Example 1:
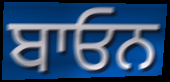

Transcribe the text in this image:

ਬਾਓਨ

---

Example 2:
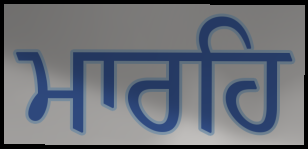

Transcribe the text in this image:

ਮਾਰਹਿ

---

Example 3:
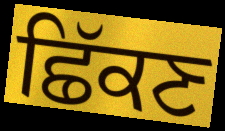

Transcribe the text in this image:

ਛਿੱਕਣ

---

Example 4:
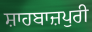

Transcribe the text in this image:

ਸ਼ਾਹਬਾਜ਼ਪੁਰੀ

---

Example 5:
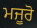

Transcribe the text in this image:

ਮਜੂਰੋ